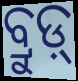
ବ୍ରୁଡ଼୍